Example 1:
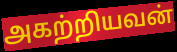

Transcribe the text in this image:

அகற்றியவன்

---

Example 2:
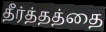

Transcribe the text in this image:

தீர்த்தத்தை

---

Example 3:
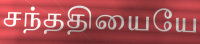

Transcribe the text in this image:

சந்ததியையே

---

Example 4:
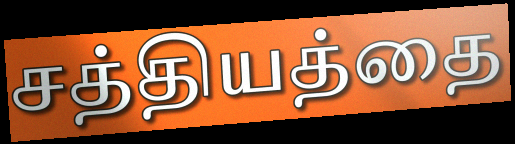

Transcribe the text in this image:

சத்தியத்தை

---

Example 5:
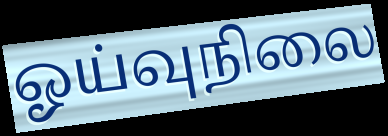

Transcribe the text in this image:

ஓய்வுநிலை